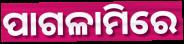
ପାଗଳାମିରେ